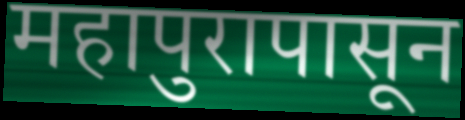
महापुरापासून